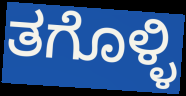
ತಗೊಳ್ಳಿ